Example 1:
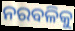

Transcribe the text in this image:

ନରବଳିକୁ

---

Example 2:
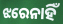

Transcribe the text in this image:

ଝରେନାହିଁ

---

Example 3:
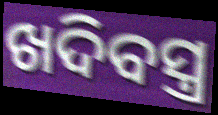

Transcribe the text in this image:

ଖଦିବସ୍ତ୍ର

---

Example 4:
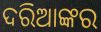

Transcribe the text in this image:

ଦରିଆଙ୍କର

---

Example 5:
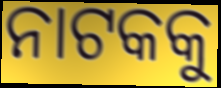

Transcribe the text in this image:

ନାଟକକୁ